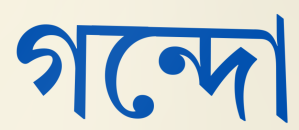
গন্দো